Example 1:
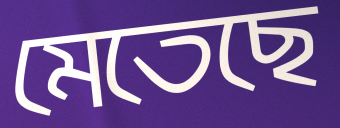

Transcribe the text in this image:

মেতেছে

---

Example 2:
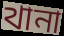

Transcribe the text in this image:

থানা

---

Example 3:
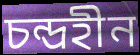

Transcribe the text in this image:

চন্দ্রহীন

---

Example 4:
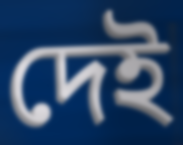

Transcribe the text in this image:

দেই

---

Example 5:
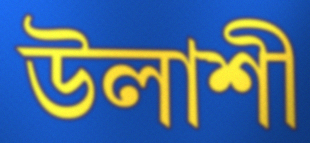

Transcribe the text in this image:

উলাশী